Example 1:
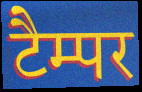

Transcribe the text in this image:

टैम्पर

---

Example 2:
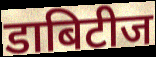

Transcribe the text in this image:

डाबिटीज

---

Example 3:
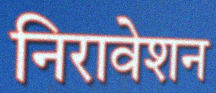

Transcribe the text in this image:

निरावेशन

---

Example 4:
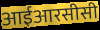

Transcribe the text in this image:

आईआरसीसी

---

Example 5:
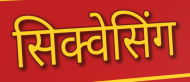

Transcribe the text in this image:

सिक्वेसिंग